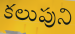
కలుపుని